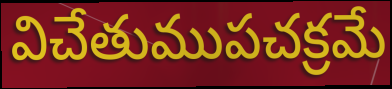
విచేతుముపచక్రమే